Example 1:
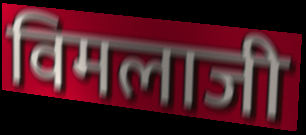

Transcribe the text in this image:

विमलाजी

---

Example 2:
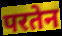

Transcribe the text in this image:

परतेन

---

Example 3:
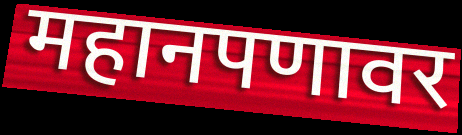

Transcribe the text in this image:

महानपणावर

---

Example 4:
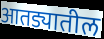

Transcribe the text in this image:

आतड्यातील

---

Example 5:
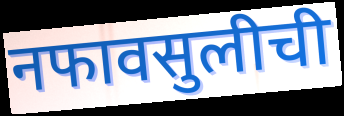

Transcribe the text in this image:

नफावसुलीची